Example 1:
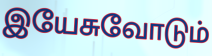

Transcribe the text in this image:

இயேசுவோடும்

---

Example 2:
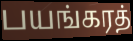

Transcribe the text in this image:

பயங்கரத்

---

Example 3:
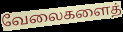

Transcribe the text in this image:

வேலைகளைத்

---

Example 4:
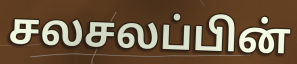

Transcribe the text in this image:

சலசலப்பின்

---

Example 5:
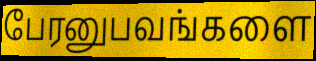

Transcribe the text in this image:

பேரனுபவங்களை